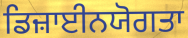
ਡਿਜ਼ਾਈਨਯੋਗਤਾ